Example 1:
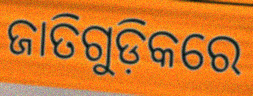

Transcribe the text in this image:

ଜାତିଗୁଡ଼ିକରେ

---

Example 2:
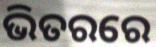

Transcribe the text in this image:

ଭିତରରେ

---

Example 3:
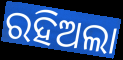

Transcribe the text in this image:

ରହିଅଲା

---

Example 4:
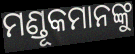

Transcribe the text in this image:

ମଣ୍ଡୂକମାନଙ୍କୁ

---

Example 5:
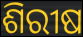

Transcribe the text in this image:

ଶିରୀଷ